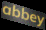
abbey